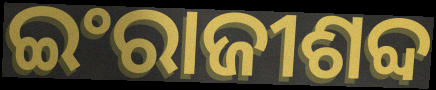
ଇଂରାଜୀଶବ୍ଦ